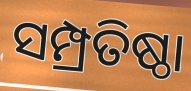
ସମ୍ପ୍ରତିଷ୍ଠା